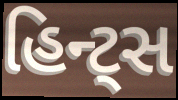
હિન્ટ્સ